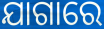
ଯାଗାରେ